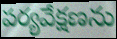
పర్యవేక్షణను